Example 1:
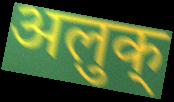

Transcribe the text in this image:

अलुक्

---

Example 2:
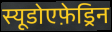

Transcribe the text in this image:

स्यूडोएफ़ेड्रिन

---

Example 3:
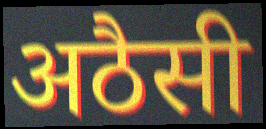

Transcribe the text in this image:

अठैसी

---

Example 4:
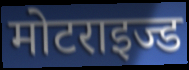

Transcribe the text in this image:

मोटराइज्ड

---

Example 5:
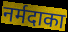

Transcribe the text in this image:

नर्मदाका